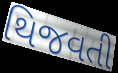
થિજવતી